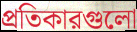
প্রতিকারগুলো